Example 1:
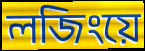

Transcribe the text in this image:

লজিংয়ে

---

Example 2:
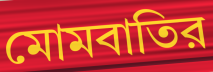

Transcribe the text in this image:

মোমবাতির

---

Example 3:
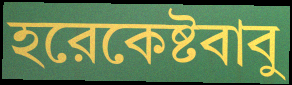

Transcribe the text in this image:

হরেকেষ্টবাবু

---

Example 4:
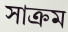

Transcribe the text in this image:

সাক্রম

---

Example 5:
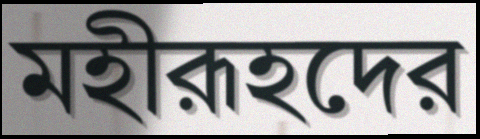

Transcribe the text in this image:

মহীরূহদের